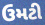
ઉમટી